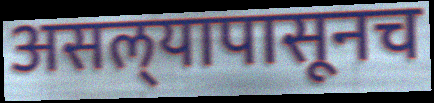
असल्यापासूनच